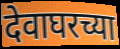
देवाघरच्या